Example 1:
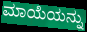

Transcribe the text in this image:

ಮಾಯೆಯನ್ನು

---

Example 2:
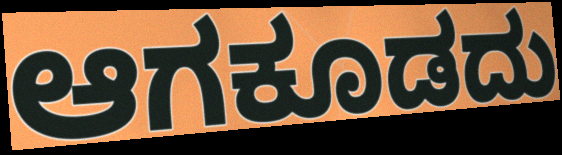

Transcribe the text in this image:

ಆಗಕೂಡದು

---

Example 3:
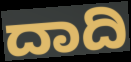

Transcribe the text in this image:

ದಾದಿ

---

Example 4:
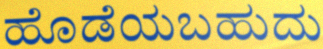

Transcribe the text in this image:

ಹೊಡೆಯಬಹುದು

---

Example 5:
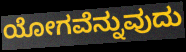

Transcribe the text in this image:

ಯೋಗವೆನ್ನುವುದು